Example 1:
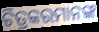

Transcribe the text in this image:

ଚିତ୍ରକରମାନଙ୍କ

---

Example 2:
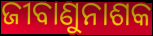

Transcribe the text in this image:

ଜୀବାଣୁନାଶକ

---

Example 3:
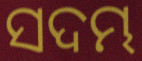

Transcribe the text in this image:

ସଦମ୍ଭ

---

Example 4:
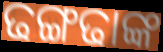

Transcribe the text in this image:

ଢଙ୍ଗଢାଙ୍କ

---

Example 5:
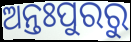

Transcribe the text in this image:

ଅନ୍ତଃପୁରରୁ